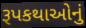
રૂપકથાઓનું